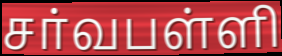
சர்வபள்ளி